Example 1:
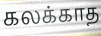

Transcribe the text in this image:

கலக்காத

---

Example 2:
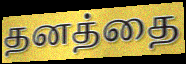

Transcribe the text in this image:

தனத்தை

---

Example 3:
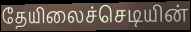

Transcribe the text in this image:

தேயிலைச்செடியின்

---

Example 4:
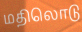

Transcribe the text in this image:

மதிலொடு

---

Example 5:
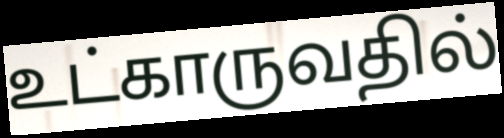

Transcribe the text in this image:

உட்காருவதில்